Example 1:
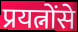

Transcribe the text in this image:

प्रयत्नोंसे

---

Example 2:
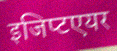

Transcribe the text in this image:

इजिप्टएयर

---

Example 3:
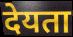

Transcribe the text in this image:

देयता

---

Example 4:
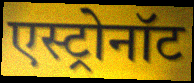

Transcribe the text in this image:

एस्ट्रोनॉट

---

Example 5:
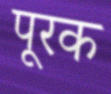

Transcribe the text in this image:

पूरक